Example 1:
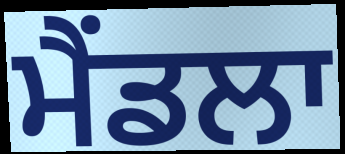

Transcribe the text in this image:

ਮੈਂਡਲਾ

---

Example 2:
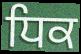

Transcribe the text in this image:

ਧਿਕ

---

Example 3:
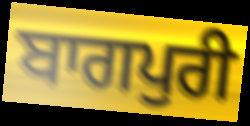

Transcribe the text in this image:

ਬਾਗਪੁਰੀ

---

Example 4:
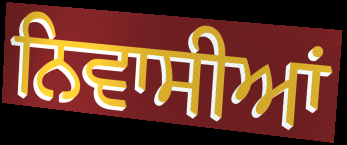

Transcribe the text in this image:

ਨਿਵਾਸੀਆਂ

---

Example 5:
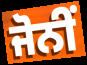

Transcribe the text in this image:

ਜੋਨੀਂ